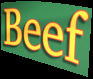
Beef